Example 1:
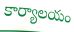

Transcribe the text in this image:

కార్యాలయం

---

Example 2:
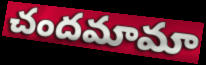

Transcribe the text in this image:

చందమామా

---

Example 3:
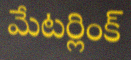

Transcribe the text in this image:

మేటర్లింక్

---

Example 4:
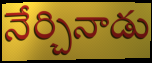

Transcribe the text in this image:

నేర్చినాడు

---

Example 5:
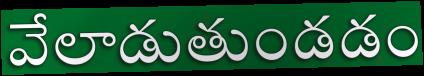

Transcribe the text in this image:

వేలాడుతుండడం